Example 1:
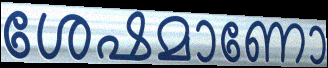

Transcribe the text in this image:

ശേഷമാണോ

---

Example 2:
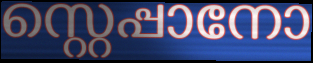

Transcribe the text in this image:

സ്റ്റെപ്പാനോ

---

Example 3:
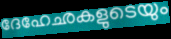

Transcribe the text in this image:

ദേഹേഛകളുടെയും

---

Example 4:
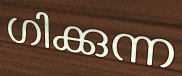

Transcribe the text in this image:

ഗിക്കുന്ന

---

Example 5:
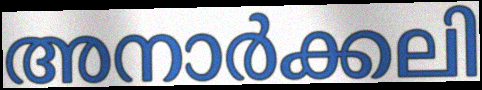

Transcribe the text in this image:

അനാർക്കലി